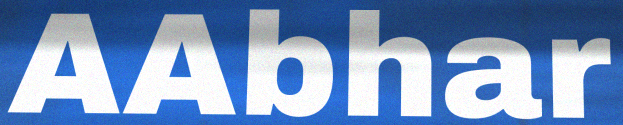
AAbhar